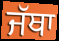
ਜੱਥਾ